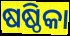
ଷଷ୍ଠିକା